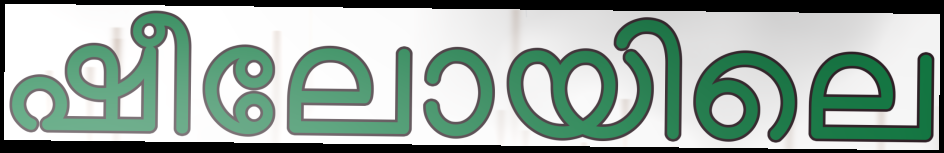
ഷീലോയിലെ